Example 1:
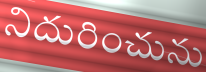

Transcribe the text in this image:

నిదురించును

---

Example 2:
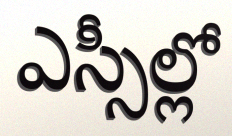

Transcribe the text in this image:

ఎస్సీల్లో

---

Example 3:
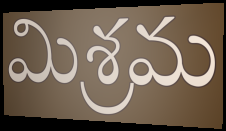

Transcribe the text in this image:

మిశ్రమ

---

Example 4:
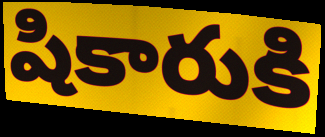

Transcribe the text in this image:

షికారుకి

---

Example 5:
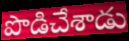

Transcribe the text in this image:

పొడిచేశాడు